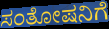
ಸಂತೋಷನಿಗೆ